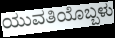
ಯುವತಿಯೊಬ್ಬಳು